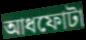
আধফোটা